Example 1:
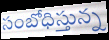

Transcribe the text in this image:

సంబోధిస్తున్న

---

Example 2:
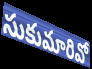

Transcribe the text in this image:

సుకుమారివో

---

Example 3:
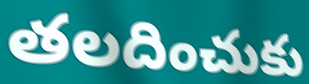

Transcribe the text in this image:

తలదించుకు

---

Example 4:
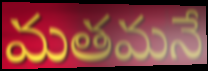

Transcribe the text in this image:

మతమనే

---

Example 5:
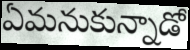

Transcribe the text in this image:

ఏమనుకున్నాడో